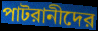
পাটরানীদের